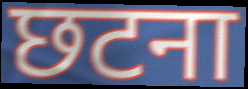
छटना